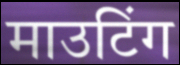
माउटिंग